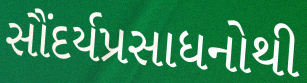
સૌંદર્યપ્રસાધનોથી